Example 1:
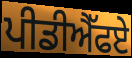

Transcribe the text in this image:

ਪੀਡੀਐੱਫਏ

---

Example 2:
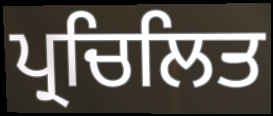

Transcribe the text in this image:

ਪ੍ਰਚਿਲਿਤ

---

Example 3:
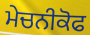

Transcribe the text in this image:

ਮੇਚਨੀਕੋਫ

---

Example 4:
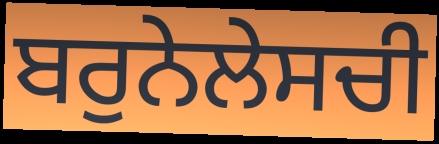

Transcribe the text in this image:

ਬਰੁਨੇਲੇਸਚੀ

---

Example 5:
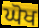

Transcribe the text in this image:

ਘੋਖ